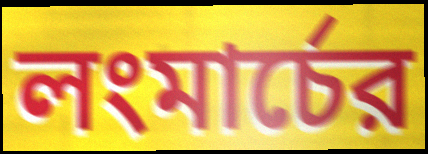
লংমার্চের